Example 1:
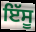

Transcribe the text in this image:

ਇੱਸੂ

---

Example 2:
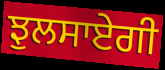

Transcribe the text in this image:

ਝੁਲਸਾਏਗੀ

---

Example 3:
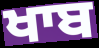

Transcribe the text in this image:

ਖਾਬ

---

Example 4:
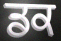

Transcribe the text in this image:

ਡਕ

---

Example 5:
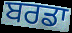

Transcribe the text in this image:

ਬਰਡਾ